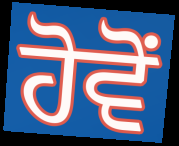
ਹੋਵੋਂ